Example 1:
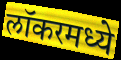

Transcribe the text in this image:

लॉकरमध्ये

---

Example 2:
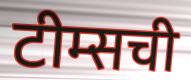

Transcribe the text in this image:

टीम्सची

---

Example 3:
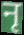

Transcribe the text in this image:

नृ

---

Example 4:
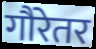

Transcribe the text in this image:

गौरेतर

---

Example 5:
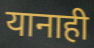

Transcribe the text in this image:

यानाही